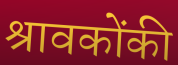
श्रावकोंकी